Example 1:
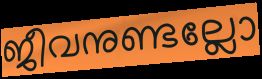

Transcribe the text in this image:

ജീവനുണ്ടല്ലോ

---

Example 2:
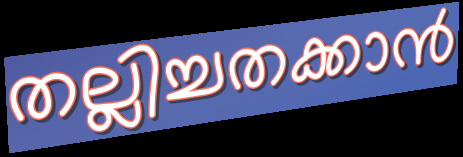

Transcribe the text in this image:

തല്ലിച്ചതക്കാൻ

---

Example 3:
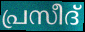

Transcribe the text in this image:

പ്രസീദ്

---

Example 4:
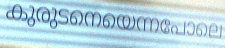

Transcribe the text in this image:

കുരുടനെയെന്നപോലെ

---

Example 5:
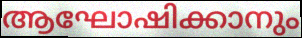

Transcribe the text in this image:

ആഘോഷിക്കാനും